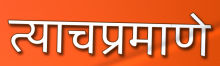
त्याचप्रमाणे